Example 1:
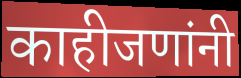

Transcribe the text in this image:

काहीजणांनी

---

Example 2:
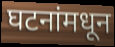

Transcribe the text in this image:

घटनांमधून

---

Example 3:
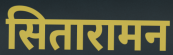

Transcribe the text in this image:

सितारामन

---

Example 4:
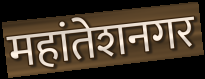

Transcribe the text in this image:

महांतेशनगर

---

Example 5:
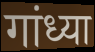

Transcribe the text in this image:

गांध्या